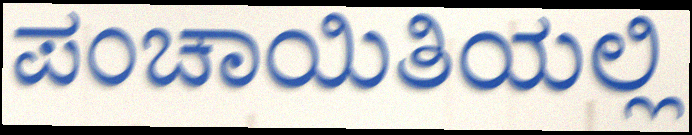
ಪಂಚಾಯಿತಿಯಲ್ಲಿ